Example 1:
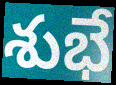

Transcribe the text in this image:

శుభే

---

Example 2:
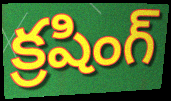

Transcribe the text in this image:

క్రషింగ్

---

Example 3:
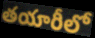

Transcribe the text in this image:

తయారీలో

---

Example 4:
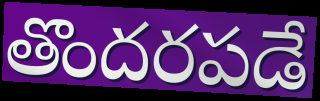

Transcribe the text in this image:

తొందరపడే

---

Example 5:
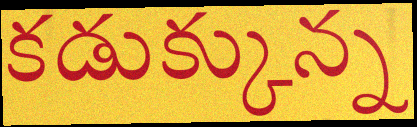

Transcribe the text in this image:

కడుక్కున్న